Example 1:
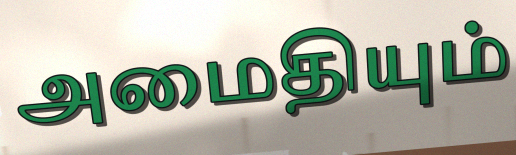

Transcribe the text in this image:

அமைதியும்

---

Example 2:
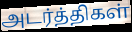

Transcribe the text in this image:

அடர்த்திகள்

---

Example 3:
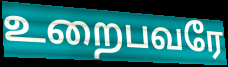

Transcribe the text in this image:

உறைபவரே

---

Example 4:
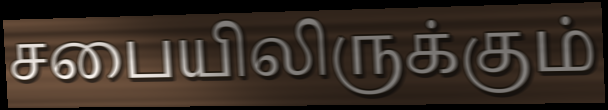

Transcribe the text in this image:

சபையிலிருக்கும்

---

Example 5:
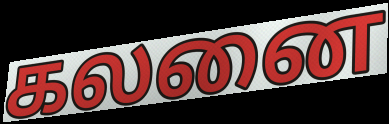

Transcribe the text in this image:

கலனை